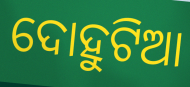
ଦୋହୁଟିଆ